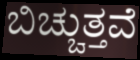
ಬಿಚ್ಚುತ್ತವೆ